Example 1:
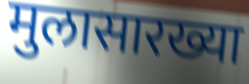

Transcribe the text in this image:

मुलासारख्या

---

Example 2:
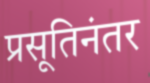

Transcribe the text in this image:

प्रसूतिनंतर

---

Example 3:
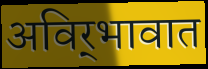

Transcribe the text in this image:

अविर्भावात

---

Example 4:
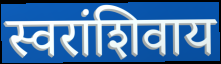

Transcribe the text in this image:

स्वरांशिवाय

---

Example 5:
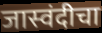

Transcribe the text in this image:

जास्वंदीचा